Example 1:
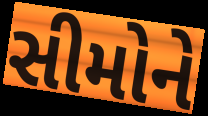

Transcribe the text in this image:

સીમોને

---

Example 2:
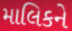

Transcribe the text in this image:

માલિકને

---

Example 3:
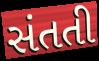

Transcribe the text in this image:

સંતતી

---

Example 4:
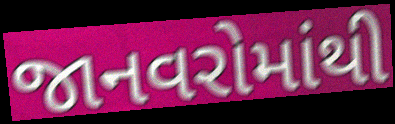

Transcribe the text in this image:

જાનવરોમાંથી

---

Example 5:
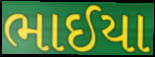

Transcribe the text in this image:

ભાઈયા